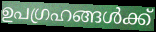
ഉപഗ്രഹങ്ങൾക്ക്